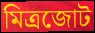
মিত্রজোট